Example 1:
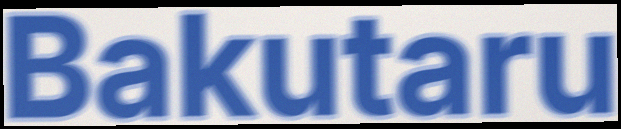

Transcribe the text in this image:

Bakutaru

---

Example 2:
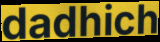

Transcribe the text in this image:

dadhich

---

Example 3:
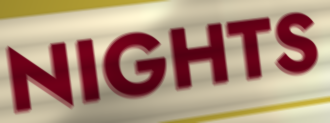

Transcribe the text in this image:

NIGHTS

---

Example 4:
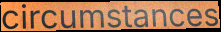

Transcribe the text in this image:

circumstances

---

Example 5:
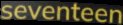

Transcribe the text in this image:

seventeen